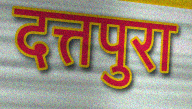
दत्तपुरा